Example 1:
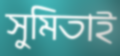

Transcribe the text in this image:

সুমিতাই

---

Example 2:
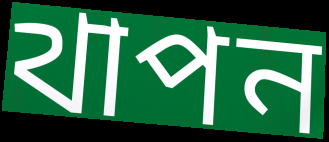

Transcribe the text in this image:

থাপন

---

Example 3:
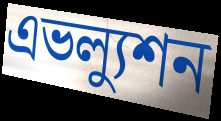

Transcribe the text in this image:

এভল্যুশন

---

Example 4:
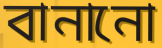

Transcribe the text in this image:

বানানো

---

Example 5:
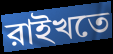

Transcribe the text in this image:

রাইখতে